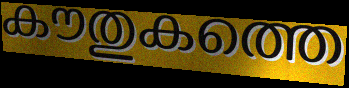
കൗതുകത്തെ